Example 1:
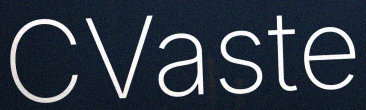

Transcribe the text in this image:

CVaste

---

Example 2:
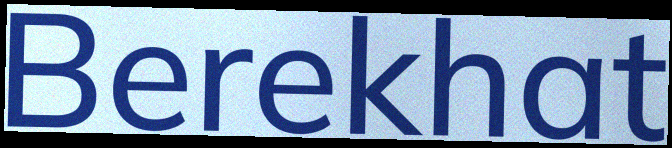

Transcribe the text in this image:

Berekhat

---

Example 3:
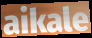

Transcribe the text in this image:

aikale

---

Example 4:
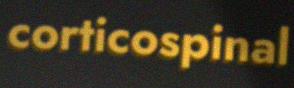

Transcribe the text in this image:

corticospinal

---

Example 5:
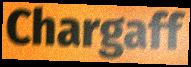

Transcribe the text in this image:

Chargaff